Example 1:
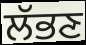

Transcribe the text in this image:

ਲੱਭਣ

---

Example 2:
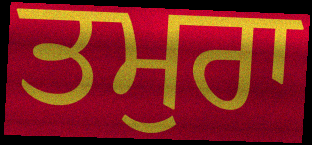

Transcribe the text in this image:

ਤਮੁਰਾ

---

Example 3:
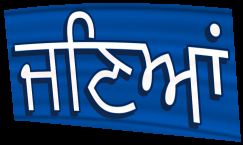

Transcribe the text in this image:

ਜਣਿਆਂ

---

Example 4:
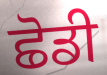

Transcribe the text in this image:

ਛੋਡੀ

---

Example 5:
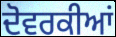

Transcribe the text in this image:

ਦੋਵਰਕੀਆਂ